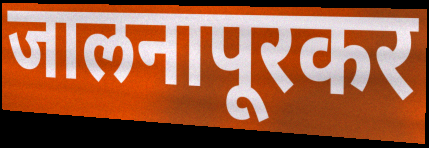
जालनापूरकर